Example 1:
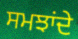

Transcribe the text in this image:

ਸਮਝਾਂਦੇ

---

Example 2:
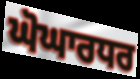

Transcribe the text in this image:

ਘੋਘਾਰਧਰ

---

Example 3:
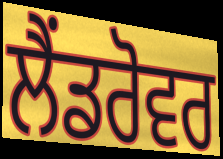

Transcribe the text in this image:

ਲੈਂਡਰੋਵਰ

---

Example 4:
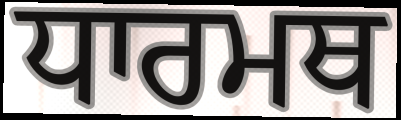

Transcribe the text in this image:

ਧਾਰਮਥ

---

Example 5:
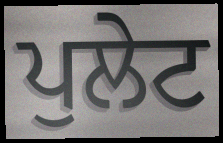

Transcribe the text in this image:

ਪੁਲੇਟ